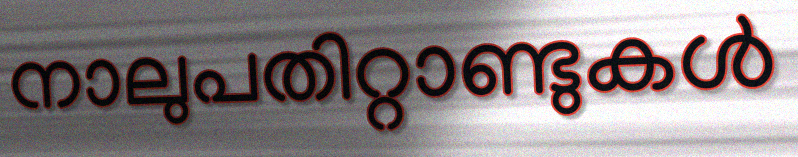
നാലുപതിറ്റാണ്ടുകൾ